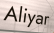
Aliyar